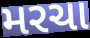
મરચા